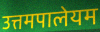
उत्तमपालेयम